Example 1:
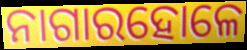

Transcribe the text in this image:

ନାଗାରହୋଳେ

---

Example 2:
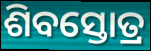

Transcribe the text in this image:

ଶିବସ୍ତୋତ୍ର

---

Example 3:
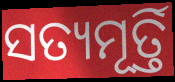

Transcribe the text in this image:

ସତ୍ୟମୂର୍ତ୍ତି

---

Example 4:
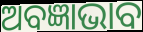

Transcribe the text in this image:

ଅବଜ୍ଞାଭାବ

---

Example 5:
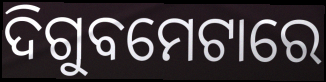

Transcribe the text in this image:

ଦିଗୁବମେଟାରେ